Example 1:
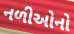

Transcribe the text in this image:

નળીઓનો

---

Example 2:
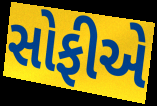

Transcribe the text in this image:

સોફીએ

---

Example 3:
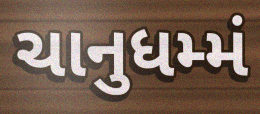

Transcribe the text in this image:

ચાનુધમ્મં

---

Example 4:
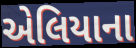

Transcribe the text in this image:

એલિયાના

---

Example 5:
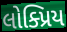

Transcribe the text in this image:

લોક્પ્રિય